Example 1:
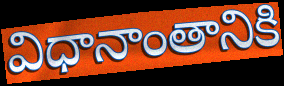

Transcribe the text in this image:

విధానాంతానికి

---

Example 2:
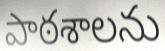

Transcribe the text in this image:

పాఠశాలను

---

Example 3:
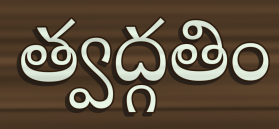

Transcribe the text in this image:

త్వద్గతిం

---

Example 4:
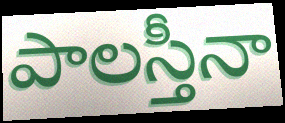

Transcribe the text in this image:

పాలస్తీనా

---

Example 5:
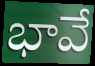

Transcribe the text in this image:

భావే